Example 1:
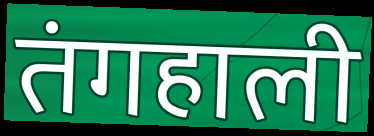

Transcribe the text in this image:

तंगहाली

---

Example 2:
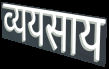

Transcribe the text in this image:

व्ययसाय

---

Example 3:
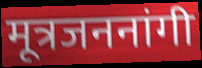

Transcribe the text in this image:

मूत्रजननांगी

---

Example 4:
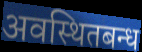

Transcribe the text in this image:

अवस्थितबन्ध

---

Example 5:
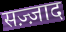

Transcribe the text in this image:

सज़्ज़ाद